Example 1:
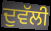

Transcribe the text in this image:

ਦੁਵੱਲੀ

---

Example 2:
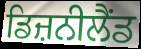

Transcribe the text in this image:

ਡਿਜ਼ਨੀਲੈਂਡ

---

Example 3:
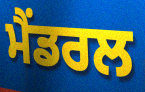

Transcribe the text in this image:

ਮੈਂਡਰਲ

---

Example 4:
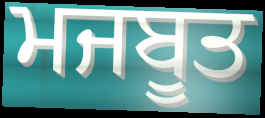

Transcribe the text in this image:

ਮਜਬੂਤ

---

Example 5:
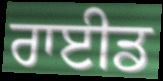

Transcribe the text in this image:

ਰਾਈਡ